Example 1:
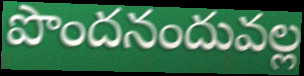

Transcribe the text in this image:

పొందనందువల్ల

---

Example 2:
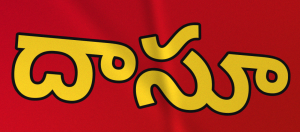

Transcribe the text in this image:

దాసూ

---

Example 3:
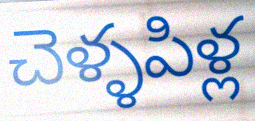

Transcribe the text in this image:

చెళ్ళపిళ్ల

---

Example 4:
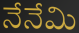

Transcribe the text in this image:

నేనేమి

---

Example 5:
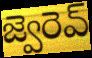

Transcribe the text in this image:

జ్వెరెవ్